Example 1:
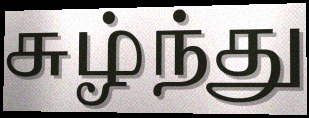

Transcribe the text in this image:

சுழ்ந்து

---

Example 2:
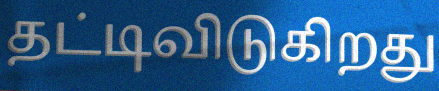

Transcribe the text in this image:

தட்டிவிடுகிறது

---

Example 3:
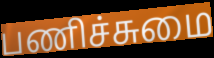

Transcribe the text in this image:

பணிச்சுமை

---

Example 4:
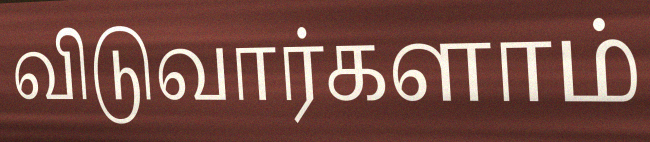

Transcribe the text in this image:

விடுவார்களாம்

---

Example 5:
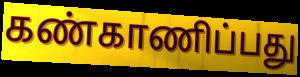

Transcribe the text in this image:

கண்காணிப்பது